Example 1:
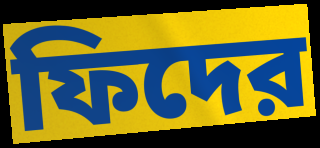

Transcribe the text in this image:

ফিদের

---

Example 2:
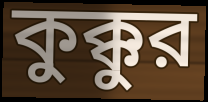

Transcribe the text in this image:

কুক্কুর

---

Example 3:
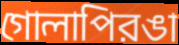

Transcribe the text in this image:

গোলাপিরঙা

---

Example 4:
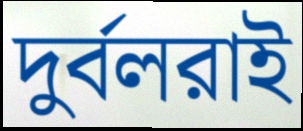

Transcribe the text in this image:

দুর্বলরাই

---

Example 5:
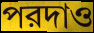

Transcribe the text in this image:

পরদাও